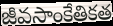
జీవసాంకేతికత